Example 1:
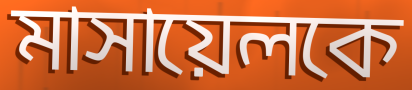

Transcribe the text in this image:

মাসায়েলকে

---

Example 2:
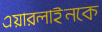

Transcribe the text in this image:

এয়ারলাইনকে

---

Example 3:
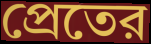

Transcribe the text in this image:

প্রেতের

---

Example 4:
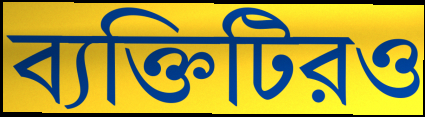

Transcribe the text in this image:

ব্যক্তিটিরও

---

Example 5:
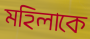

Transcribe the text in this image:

মহিলাকে